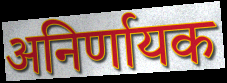
अनिर्णायक